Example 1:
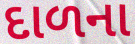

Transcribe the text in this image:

દાળના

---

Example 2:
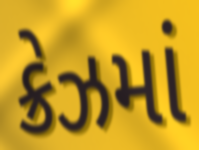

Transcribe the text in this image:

ક્રેઝમાં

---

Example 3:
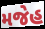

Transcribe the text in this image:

મજેહ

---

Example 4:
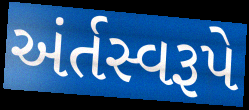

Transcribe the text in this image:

અંર્તસ્વરૂપે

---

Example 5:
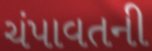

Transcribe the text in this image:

ચંપાવતની